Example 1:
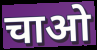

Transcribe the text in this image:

चाओ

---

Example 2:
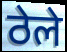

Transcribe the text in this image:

ठेले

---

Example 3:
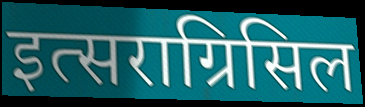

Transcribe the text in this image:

इत्सराग्रिसिल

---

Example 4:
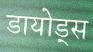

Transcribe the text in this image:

डायोड्स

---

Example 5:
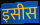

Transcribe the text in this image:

इसीस